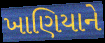
ખાણિયાને